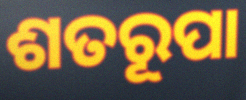
ଶତରୂପା